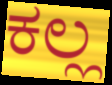
ಕಲ್ಲ